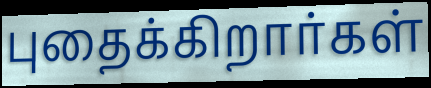
புதைக்கிறார்கள்